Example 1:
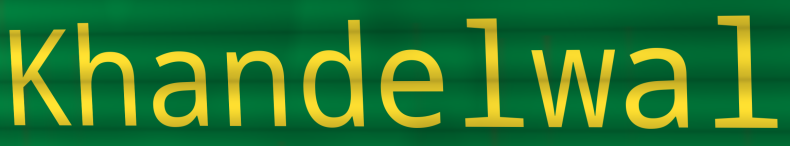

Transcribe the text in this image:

Khandelwal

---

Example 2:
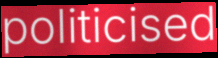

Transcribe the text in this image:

politicised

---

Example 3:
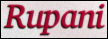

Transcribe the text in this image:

Rupani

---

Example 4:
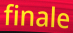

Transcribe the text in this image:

finale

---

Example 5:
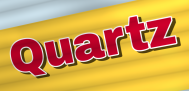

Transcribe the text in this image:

Quartz